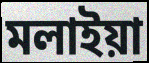
মলাইয়া